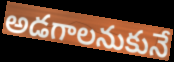
అడగాలనుకునే